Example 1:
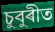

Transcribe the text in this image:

চুবুৰীত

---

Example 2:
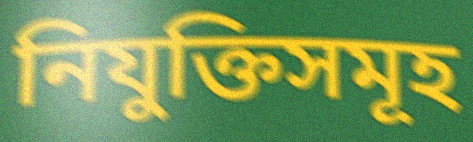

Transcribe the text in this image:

নিযুক্তিসমূহ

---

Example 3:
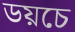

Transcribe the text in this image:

ডয়চে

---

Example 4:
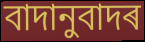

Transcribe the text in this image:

বাদানুবাদৰ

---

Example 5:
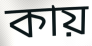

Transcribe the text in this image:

কায়